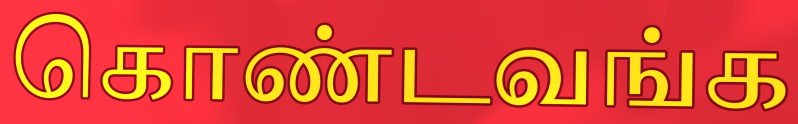
கொண்டவங்க